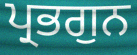
ਪ੍ਰਭਗੁਨ